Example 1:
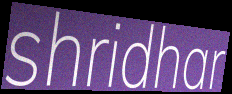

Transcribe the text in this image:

shridhar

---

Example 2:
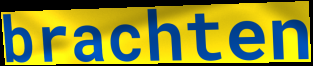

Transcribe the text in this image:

brachten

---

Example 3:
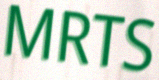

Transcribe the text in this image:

MRTS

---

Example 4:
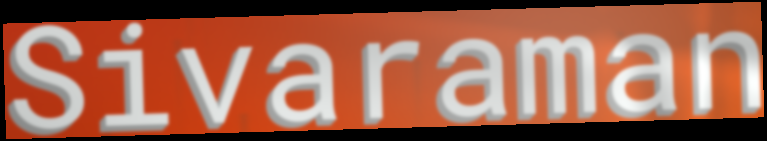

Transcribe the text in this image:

Sivaraman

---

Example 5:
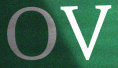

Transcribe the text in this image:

OV